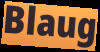
Blaug